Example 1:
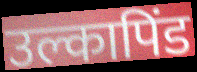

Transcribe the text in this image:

उल्‍कापिंड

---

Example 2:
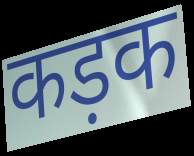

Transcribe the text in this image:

कड़क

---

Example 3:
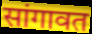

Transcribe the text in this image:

सांगावत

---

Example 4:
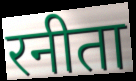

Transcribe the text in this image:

रनीता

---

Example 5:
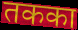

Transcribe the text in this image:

तकका